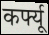
कर्फ्यू